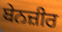
ਬੇਨਜ਼ੀਰ